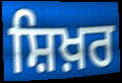
ਸ਼ਿਖ਼ਰ